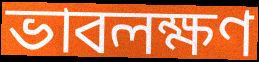
ভাবলক্ষণ